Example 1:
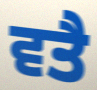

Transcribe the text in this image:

ਵਤੈ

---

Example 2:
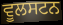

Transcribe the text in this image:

ਵੂਲਸਟਨ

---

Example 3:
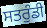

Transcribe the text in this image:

ਸਤਰੁੰਡੀ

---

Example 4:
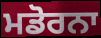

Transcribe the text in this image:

ਮਡੋਰਨਾ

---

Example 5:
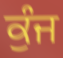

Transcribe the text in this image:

ਕੁੰਜ